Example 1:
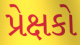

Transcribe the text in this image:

પ્રેક્ષકો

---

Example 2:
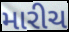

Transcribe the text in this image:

મારીચ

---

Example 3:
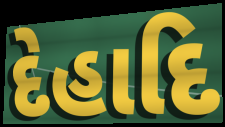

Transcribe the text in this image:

દેહાદિ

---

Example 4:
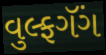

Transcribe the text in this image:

વુલ્ફગૅંગ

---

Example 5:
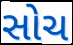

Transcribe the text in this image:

સોચ